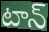
టాన్